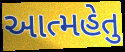
આત્મહેતુ